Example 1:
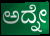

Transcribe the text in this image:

ಅದ್ನೇ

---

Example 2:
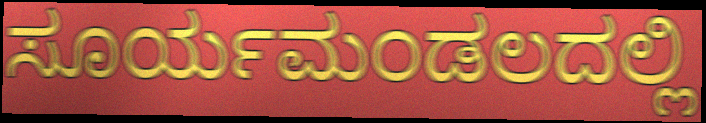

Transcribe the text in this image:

ಸೂರ್ಯಮಂಡಲದಲ್ಲಿ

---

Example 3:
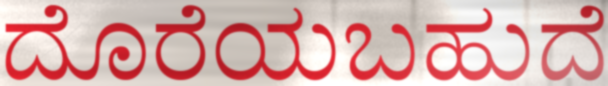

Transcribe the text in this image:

ದೊರೆಯಬಹುದೆ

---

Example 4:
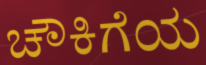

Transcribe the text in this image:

ಚೌಕಿಗೆಯ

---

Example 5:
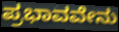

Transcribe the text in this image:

ಪ್ರಭಾವವೇನು